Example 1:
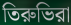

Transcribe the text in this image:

তিরুভিরা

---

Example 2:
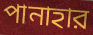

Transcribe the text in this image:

পানাহার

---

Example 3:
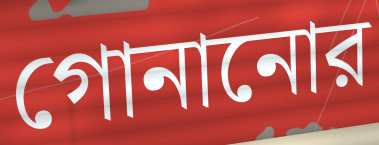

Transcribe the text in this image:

গোনানোর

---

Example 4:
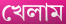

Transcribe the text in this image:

খেলাম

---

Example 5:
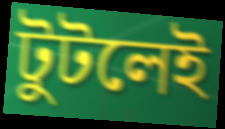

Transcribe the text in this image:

টুটলেই